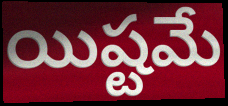
యిష్టమే